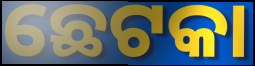
ଛେଟକା